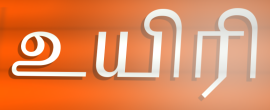
உயிரி